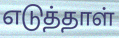
எடுத்தாள்